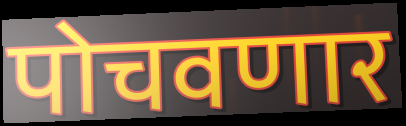
पोचवणार